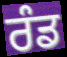
ਰੰਡ